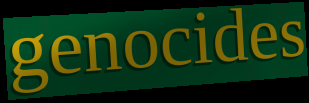
genocides